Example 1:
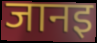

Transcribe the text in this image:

जानइ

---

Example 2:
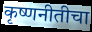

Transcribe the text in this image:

कृष्णनीतीचा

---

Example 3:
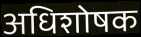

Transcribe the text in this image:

अधिशोषक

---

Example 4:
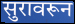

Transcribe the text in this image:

सुरावरून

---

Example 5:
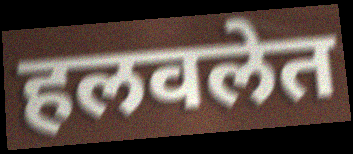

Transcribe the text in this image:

हलवलेत